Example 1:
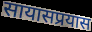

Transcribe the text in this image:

सायासप्रयास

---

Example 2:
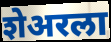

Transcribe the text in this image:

शेअरला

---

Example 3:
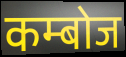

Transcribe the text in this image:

कम्बोज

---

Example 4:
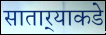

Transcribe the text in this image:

सातार्याकडे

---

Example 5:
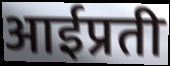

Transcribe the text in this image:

आईप्रती